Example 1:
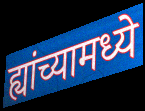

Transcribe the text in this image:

ह्यांच्यामध्ये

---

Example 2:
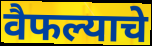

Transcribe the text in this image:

वैफल्याचे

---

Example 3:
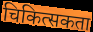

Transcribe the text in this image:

चिकित्सकता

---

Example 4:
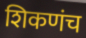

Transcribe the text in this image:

शिकणंच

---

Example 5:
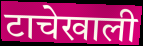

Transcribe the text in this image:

टाचेखाली